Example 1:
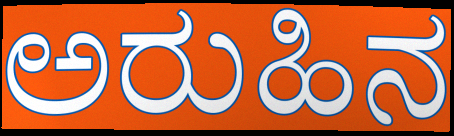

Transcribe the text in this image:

ಅರುಹಿನ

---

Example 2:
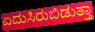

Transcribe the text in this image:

ಏದುಸಿರುಬಿಡುತ್ತಾ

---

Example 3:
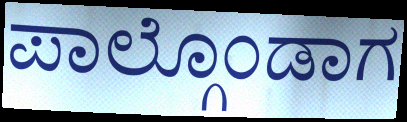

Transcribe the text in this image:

ಪಾಲ್ಗೊಂಡಾಗ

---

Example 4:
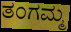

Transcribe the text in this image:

ತಂಗಮ್ಮ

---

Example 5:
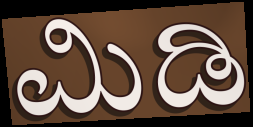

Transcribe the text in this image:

ಮಿಡಿ